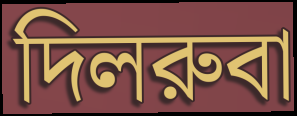
দিলরুবা